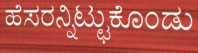
ಹೆಸರನ್ನಿಟ್ಟುಕೊಂಡು